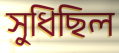
সুধিছিল